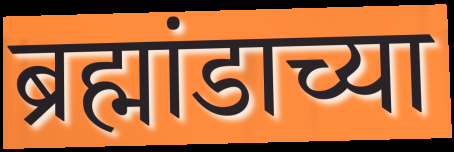
ब्रह्मांडाच्या